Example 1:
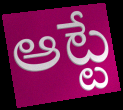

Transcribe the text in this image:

ఆట్టే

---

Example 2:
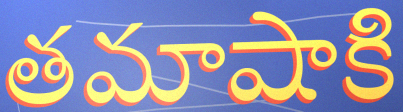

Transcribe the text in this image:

తమాషాకి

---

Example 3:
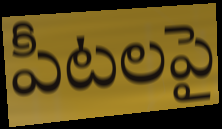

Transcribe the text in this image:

పీటలపై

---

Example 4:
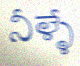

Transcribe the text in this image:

నీళ్ళే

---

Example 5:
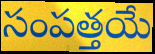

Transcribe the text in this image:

సంపత్తయే